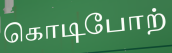
கொடிபோற்